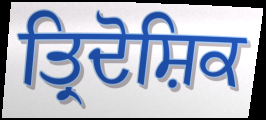
ਤ੍ਰਿਦੋਸ਼ਿਕ